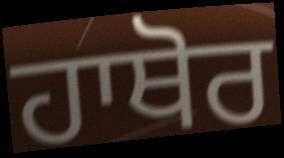
ਹਾਥੋਰ